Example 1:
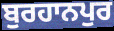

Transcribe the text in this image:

ਬੁਰਹਾਨਪੁਰ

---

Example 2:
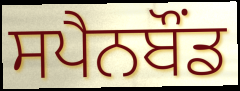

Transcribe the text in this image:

ਸਪੈਨਬੌਂਡ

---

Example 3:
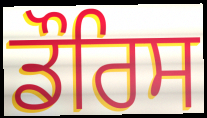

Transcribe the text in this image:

ਡੌਰਿਸ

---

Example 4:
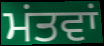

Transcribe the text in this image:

ਮਂਤਵਾਂ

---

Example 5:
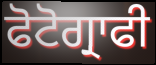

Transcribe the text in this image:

ਫੋਟੋਗ੍ਰਾਫੀ